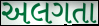
અલગતા